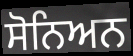
ਸੋਨਿਅਨ